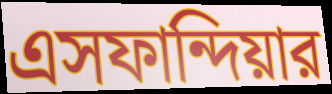
এসফান্দিয়ার